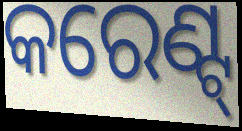
କରେଣ୍ଟ୍